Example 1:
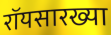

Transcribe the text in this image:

रॉयसारख्या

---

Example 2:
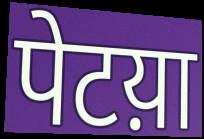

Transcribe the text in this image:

पेटय़ा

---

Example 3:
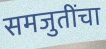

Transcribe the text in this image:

समजुतींचा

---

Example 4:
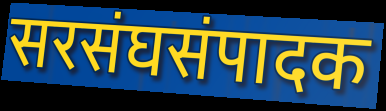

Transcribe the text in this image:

सरसंघसंपादक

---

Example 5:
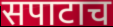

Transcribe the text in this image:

सपाटाच